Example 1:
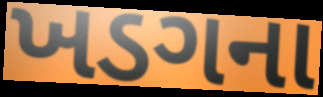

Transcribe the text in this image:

ખડગના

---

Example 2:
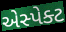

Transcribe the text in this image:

એસ્પેક્ટ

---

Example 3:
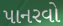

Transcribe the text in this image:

પાનરવો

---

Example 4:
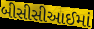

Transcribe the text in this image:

બીસીસીઆઈમાં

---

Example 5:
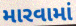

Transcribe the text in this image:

મારવામાં